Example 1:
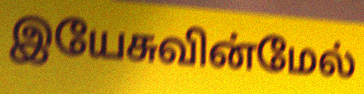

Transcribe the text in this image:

இயேசுவின்மேல்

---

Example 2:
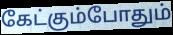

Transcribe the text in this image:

கேட்கும்போதும்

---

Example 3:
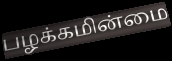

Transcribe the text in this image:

பழக்கமின்மை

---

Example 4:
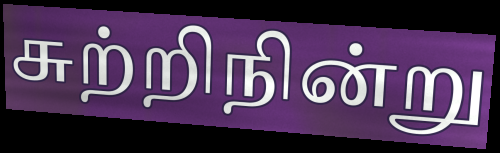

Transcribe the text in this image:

சுற்றிநின்று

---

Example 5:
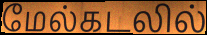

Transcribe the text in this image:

மேல்கடலில்